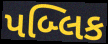
પબ્લિક